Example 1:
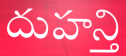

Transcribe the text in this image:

దుహన్తి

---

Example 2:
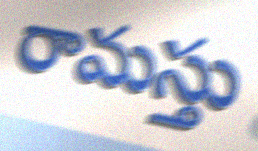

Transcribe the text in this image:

రామస్తు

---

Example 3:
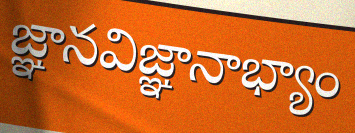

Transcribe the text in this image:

జ్ఞానవిజ్ఞానాభ్యాం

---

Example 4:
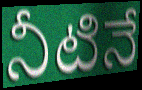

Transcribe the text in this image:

నీటినే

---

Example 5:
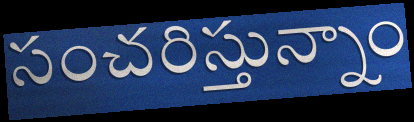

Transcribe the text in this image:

సంచరిస్తున్నాం